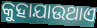
କୁହାଯାଉଥାଏ